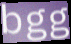
bgg